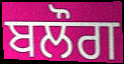
ਬਲੌਗ